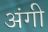
अंगी